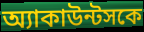
অ্যাকাউন্টসকে